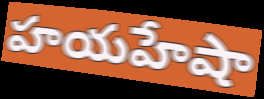
హయహేషా